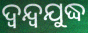
ଦ୍ୱନ୍ଦ୍ୱଯୁଦ୍ଧ